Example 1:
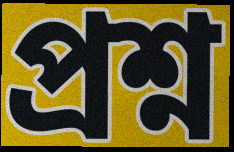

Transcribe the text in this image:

প্ৰশ্ন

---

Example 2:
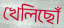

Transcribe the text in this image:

খেলিছোঁ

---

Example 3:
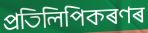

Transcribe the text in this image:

প্ৰতিলিপিকৰণৰ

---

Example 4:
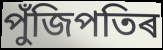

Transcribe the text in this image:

পুঁজিপতিৰ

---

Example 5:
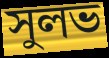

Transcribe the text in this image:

সুলভ